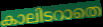
കാലിടറാതെ